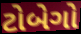
ટોબેગો